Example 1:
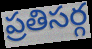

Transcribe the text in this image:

ప్రతిసర్గ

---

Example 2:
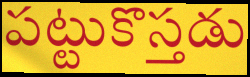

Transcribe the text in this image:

పట్టుకొస్తడు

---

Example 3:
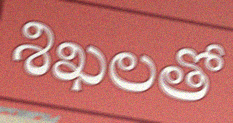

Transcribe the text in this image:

శిఖలతో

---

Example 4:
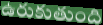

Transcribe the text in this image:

ఉరుకుతుంది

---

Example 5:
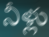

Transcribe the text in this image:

నీళ్లు